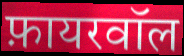
फ़ायरवॉल